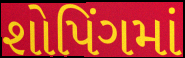
શોપિંગમાં